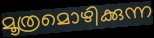
മൂത്രമൊഴിക്കുന്ന